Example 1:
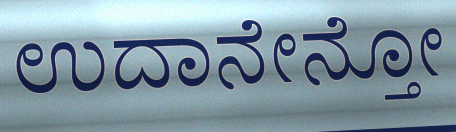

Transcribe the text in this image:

ಉದಾನೇನ್ತೋ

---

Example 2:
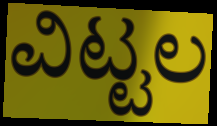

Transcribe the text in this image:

ವಿಟ್ಟಲ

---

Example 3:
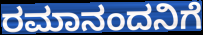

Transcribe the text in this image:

ರಮಾನಂದನಿಗೆ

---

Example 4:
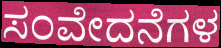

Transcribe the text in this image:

ಸಂವೇದನೆಗಳ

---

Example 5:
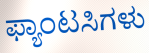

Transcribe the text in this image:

ಫ್ಯಾಂಟಸಿಗಳು